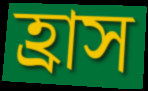
হ্রাস